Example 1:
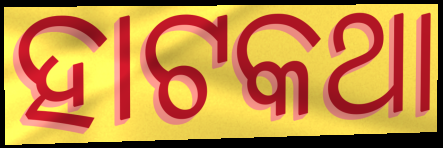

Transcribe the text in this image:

ହାଟକଥା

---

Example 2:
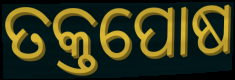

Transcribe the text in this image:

ତକ୍ତପୋଷ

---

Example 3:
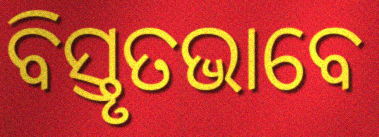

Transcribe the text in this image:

ବିସ୍ତୃତଭାବେ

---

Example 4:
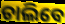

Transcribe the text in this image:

ଚାଲିବେ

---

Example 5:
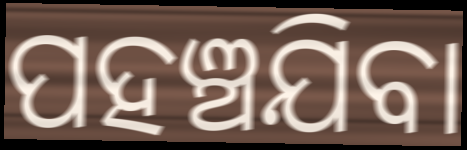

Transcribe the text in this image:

ପହଞ୍ଚଯିବା